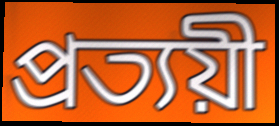
প্রত্যয়ী